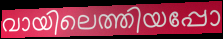
വായിലെത്തിയപ്പോ